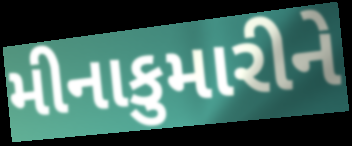
મીનાકુમારીને